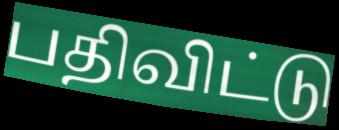
பதிவிட்டு